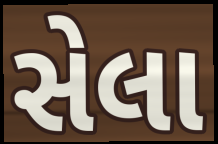
સેલા